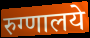
रुग्णालये